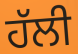
ਹੱਲੀ